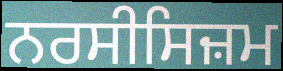
ਨਰਸੀਸਿਜ਼ਮ